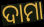
ଦାମା